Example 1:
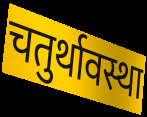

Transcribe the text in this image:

चतुर्थावस्था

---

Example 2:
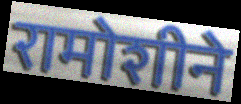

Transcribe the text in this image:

रामोशीने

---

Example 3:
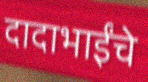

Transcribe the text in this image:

दादाभाईंचे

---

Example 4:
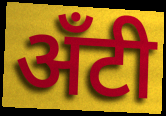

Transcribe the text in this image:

अँटी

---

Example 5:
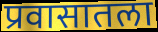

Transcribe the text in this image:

प्रवासातला